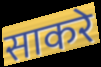
साकरे